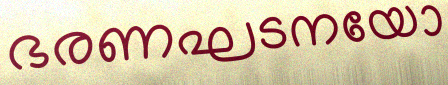
ഭരണഘടനയോ